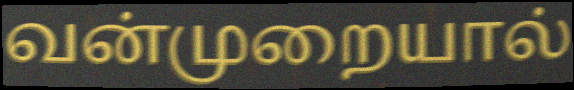
வன்முறையால்